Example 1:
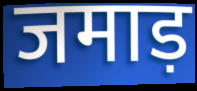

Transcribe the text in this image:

जमाड़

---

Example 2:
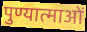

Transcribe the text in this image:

पुण्यात्माओं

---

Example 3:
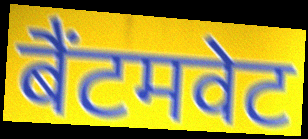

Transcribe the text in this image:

बैंटमवेट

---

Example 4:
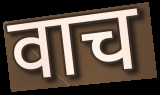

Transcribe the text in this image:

वाच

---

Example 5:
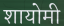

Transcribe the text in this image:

शायोमी